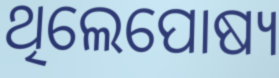
ଥିଲେପୋଷ୍ୟ